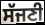
ਸੱਜਣੀ